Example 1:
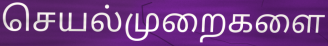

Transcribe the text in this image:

செயல்முறைகளை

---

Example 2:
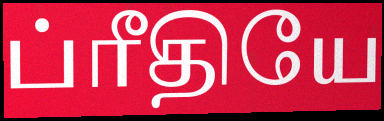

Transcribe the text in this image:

ப்ரீதியே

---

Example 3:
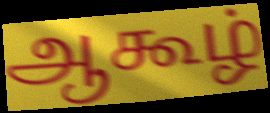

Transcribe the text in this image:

ஆகூழ்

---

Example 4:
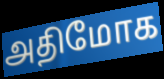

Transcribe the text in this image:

அதிமோக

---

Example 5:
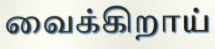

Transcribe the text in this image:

வைக்கிறாய்